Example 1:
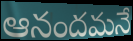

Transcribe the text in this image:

ఆనందమనే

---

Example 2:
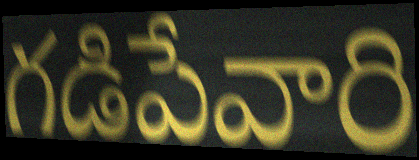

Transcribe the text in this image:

గడిపేవారి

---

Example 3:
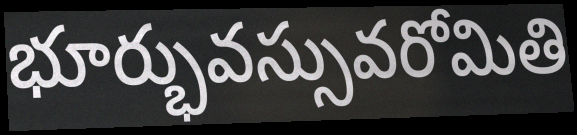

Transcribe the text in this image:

భూర్భువస్సువరోమితి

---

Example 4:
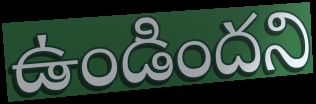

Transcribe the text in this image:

ఉండిందని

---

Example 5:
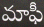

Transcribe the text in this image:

మాఫీ